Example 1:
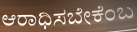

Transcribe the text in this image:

ಆರಾಧಿಸಬೇಕೆಂಬ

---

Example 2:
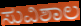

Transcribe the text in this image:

ಸುವಿಶಾಲ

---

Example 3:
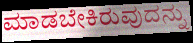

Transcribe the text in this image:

ಮಾಡಬೇಕಿರುವುದನ್ನು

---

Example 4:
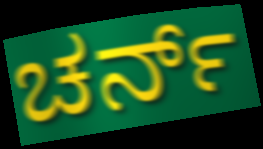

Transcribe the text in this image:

ಚರ್ನ್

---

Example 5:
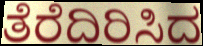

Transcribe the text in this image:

ತೆರೆದಿರಿಸಿದ